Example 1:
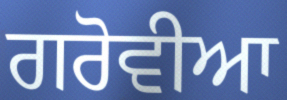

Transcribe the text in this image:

ਗਰੋਵੀਆ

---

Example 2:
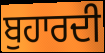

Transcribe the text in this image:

ਬੁਹਾਰਦੀ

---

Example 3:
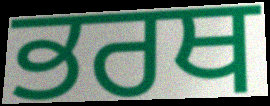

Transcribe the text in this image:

ਭਰਥ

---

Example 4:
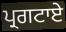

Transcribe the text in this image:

ਪ੍ਰਗਟਾਏ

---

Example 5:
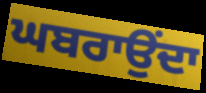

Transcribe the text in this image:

ਘਬਰਾਉਂਦਾ